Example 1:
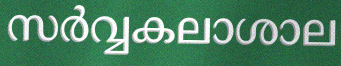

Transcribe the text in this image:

സർവ്വകലാശാല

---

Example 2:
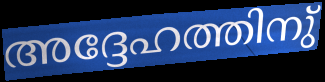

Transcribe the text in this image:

അദ്ദേഹത്തിനു്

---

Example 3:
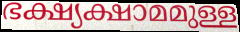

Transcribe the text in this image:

ഭക്ഷ്യക്ഷാമമുള്ള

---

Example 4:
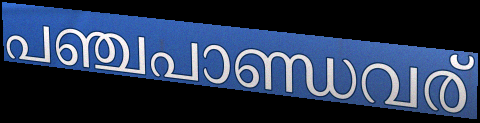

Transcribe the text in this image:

പഞ്ചപാണ്ഡവര്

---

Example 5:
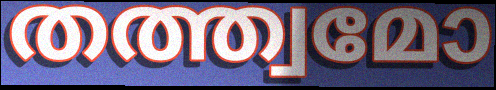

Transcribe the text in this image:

തത്ത്വമോ